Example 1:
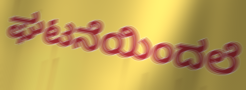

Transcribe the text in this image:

ಘಟನೆಯಿಂದಲೆ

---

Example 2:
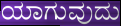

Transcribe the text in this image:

ಯಾಗುವುದು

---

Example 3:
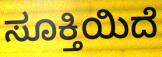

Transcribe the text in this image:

ಸೂಕ್ತಿಯಿದೆ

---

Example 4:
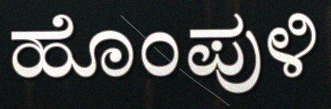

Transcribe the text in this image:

ಹೊಂಪುಳಿ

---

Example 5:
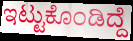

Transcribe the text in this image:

ಇಟ್ಟುಕೊಂಡಿದ್ದೆ